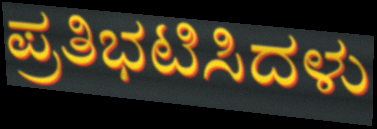
ಪ್ರತಿಭಟಿಸಿದಳು